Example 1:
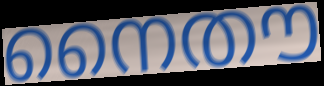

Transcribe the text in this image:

നൈതൗ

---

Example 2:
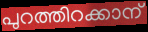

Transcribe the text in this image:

പുറത്തിറക്കാന്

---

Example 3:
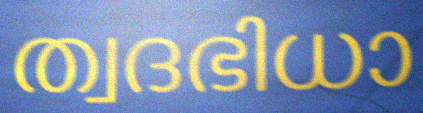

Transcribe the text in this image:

ത്വദഭിധാ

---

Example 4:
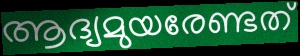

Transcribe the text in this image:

ആദ്യമുയരേണ്ടത്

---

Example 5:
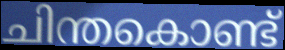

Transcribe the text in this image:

ചിന്തകൊണ്ട്